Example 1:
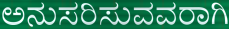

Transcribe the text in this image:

ಅನುಸರಿಸುವವರಾಗಿ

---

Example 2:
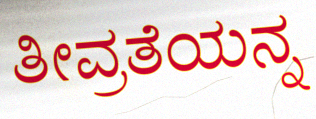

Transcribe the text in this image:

ತೀವ್ರತೆಯನ್ನ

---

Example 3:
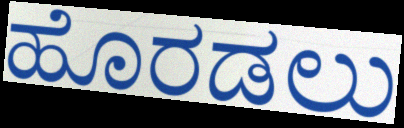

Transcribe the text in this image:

ಹೊರಡಲು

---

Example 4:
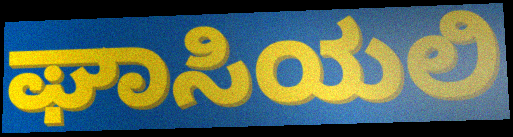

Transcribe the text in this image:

ಘಾಸಿಯಲಿ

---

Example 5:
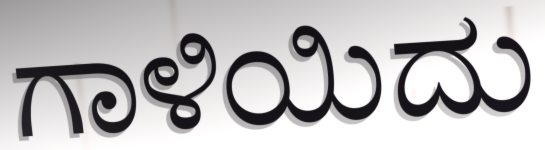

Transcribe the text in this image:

ಗಾಳಿಯಿದು